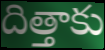
దిత్తాకు